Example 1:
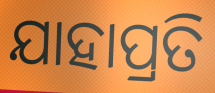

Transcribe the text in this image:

ଯାହାପ୍ରତି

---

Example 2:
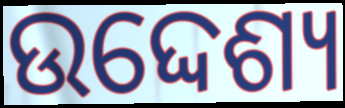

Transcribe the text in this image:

ଉଦ୍ଦେଶ୍ୟ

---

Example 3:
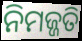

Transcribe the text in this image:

ନିମଜ୍ଜତି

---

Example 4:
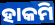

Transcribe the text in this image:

ହାକମି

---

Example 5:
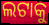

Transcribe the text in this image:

ଲଟାକୁ